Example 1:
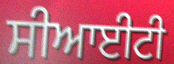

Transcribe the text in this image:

ਸੀਆਈਟੀ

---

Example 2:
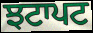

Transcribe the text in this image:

ਝਟਾਪਟ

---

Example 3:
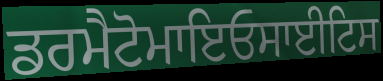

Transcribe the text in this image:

ਡਰਮੈਟੋਮਾਇਓਸਾਈਟਿਸ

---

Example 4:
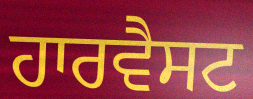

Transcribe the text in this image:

ਹਾਰਵੈਸਟ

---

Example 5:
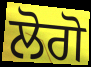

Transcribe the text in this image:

ਲੋਗੋ